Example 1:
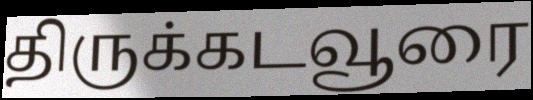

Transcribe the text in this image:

திருக்கடவூரை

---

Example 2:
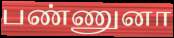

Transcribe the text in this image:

பண்ணுனா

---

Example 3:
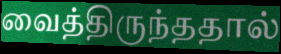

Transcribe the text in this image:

வைத்திருந்ததால்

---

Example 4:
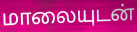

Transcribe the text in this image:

மாலையுடன்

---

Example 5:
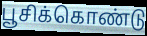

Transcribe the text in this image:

பூசிக்கொண்டு